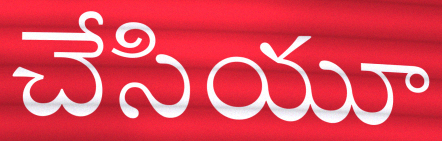
చేసియూ